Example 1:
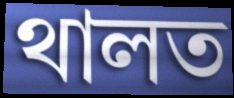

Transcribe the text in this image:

থালত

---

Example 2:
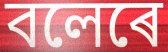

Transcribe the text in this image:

বলেৰে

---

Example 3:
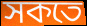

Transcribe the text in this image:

সকতে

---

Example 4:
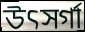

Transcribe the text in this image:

উৎসৰ্গা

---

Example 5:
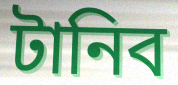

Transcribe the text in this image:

টানিব